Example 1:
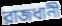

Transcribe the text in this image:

রাজধানী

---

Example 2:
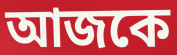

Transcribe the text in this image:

আজকে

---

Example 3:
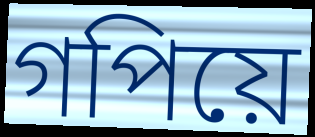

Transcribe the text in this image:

গপিয়ে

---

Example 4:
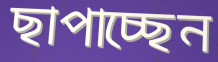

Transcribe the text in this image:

ছাপাচ্ছেন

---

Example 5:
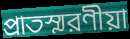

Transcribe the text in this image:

প্রাতস্মরণীয়া